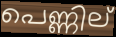
പെണ്ണില്